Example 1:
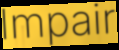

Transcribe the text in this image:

Impair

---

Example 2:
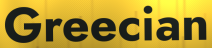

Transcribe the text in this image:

Greecian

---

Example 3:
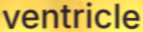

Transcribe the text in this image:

ventricle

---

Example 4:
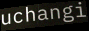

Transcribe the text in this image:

uchangi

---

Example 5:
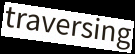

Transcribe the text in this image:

traversing